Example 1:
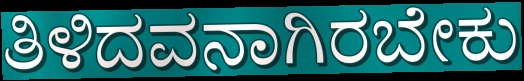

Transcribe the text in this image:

ತಿಳಿದವನಾಗಿರಬೇಕು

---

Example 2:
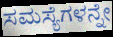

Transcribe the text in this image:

ಸಮಸ್ಯೆಗಳನ್ನೇ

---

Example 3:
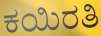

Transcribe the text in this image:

ಕಯಿರತಿ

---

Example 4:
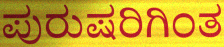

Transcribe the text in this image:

ಪುರುಷರಿಗಿಂತ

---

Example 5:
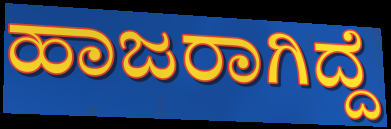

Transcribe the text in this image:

ಹಾಜರಾಗಿದ್ದೆ